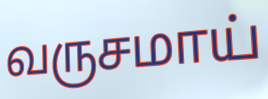
வருசமாய்